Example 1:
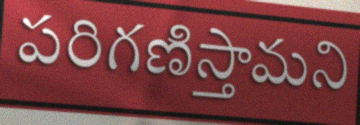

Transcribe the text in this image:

పరిగణిస్తామని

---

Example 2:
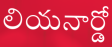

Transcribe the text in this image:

లియనార్డో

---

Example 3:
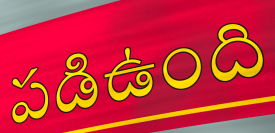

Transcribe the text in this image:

పడిఉంది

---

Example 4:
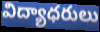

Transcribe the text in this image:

విద్యాధరులు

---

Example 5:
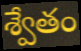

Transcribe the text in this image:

శ్వేతం